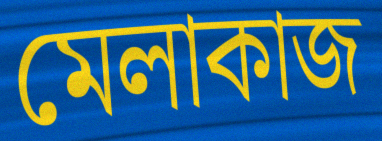
মেলাকাজ